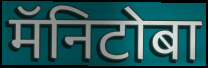
मॅनिटोबा